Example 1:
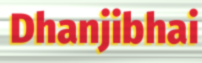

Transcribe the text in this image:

Dhanjibhai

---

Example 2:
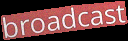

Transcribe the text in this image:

broadcast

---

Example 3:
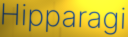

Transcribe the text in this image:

Hipparagi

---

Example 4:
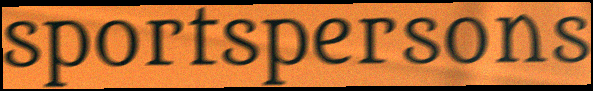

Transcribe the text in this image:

sportspersons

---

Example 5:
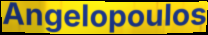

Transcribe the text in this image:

Angelopoulos